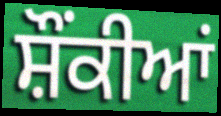
ਸ਼ੌਂਕੀਆਂ